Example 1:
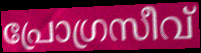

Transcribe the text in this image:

പ്രോഗ്രസീവ്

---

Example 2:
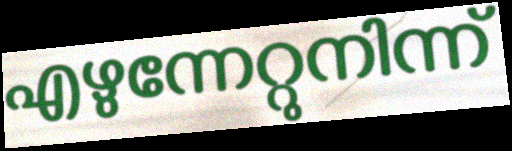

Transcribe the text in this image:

എഴുന്നേറ്റുനിന്ന്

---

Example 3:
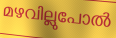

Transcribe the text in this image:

മഴവില്ലുപോൽ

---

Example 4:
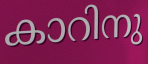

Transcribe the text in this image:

കാറിനു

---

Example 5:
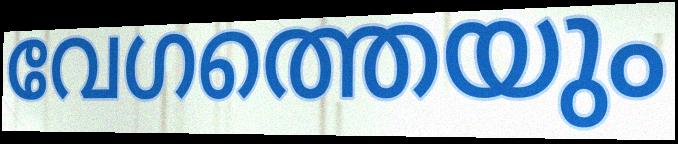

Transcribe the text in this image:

വേഗത്തെയും